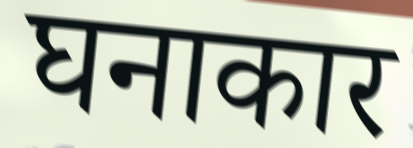
घनाकार